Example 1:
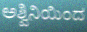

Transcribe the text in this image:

ಅಶ್ವಿನಿಯಿಂದ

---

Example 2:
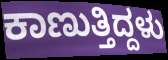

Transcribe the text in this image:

ಕಾಣುತ್ತಿದ್ದಳು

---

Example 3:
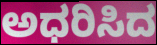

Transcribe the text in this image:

ಅಧರಿಸಿದ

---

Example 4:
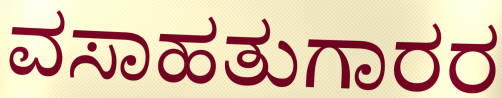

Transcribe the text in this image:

ವಸಾಹತುಗಾರರ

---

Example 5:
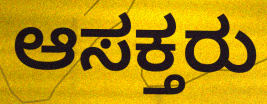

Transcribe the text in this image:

ಆಸಕ್ತರು